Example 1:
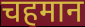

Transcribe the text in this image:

चहमान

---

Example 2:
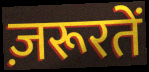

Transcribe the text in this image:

ज़रूरतें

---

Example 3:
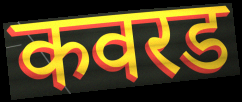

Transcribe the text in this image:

कवरड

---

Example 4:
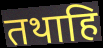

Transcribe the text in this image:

तथाहि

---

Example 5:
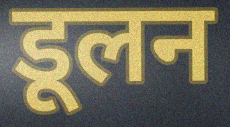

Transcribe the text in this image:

डूलन